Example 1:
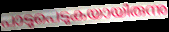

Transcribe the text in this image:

പാടുപെടുകയായിരുന്നു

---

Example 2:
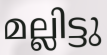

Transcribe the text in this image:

മല്ലിട്ടു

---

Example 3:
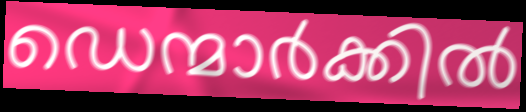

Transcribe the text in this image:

ഡെന്മാർക്കിൽ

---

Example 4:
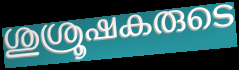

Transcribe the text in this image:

ശുശ്രൂഷകരുടെ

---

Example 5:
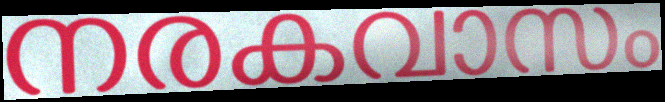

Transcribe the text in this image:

നരകവാസം